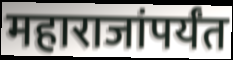
महाराजांपर्यंत